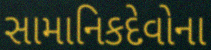
સામાનિકદેવોના